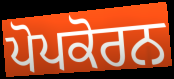
ਪੋਪਕੋਰਨ